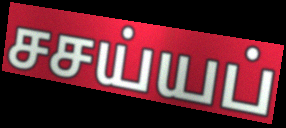
சசய்யப்